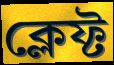
ক্লেফ্ট